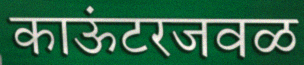
काऊंटरजवळ